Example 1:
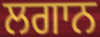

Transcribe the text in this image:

ਲਗਾਨ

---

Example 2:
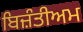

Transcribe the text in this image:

ਬਿਜ਼ੰਤੀਅਮ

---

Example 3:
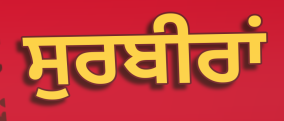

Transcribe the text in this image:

ਸੁਰਬੀਰਾਂ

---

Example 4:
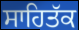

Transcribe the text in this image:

ਸਾਹਿਤੱਕ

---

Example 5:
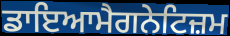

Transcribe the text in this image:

ਡਾਇਆਮੈਗਨੇਟਿਜ਼ਮ